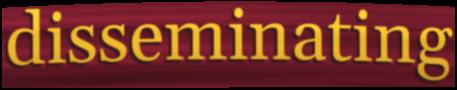
disseminating